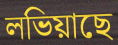
লভিয়াছে